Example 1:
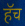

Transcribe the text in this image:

हॅच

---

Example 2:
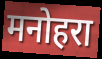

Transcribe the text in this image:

मनोहरा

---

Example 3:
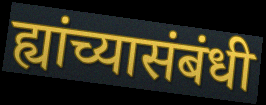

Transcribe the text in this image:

ह्यांच्यासंबंधी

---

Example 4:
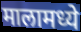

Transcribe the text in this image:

मालामध्ये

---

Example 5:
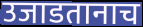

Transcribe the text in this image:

उजाडतानाच